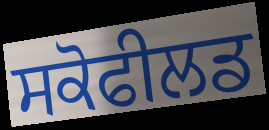
ਸਕੋਫੀਲਡ